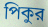
পিকুর